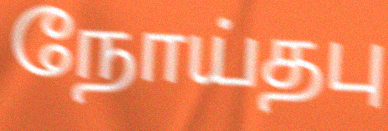
நோய்தபு